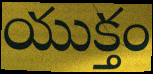
యుక్తం